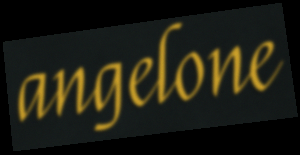
angelone